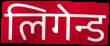
लिगेन्ड